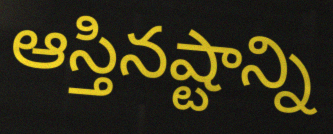
ఆస్తినష్టాన్ని